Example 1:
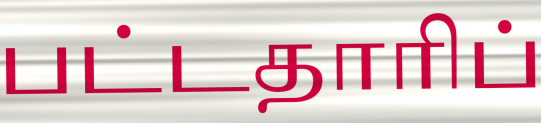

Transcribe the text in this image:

பட்டதாரிப்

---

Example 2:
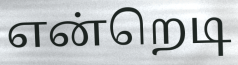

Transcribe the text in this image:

என்றெடி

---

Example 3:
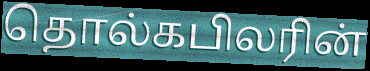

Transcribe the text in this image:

தொல்கபிலரின்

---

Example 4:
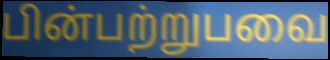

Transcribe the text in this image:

பின்பற்றுபவை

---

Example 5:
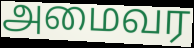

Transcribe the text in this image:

அமைவர